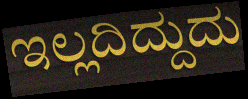
ಇಲ್ಲದಿದ್ದುದು